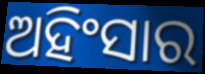
ଅହିଂସାର